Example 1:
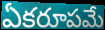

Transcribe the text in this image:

ఏకరూపమే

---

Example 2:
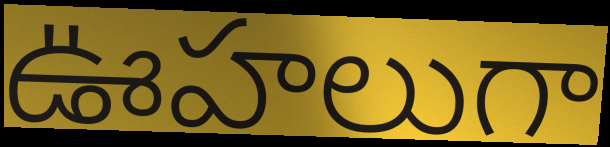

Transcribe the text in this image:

ఊహలుగా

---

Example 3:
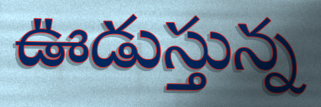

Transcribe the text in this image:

ఊడుస్తున్న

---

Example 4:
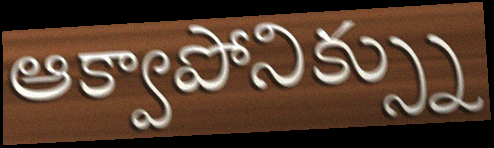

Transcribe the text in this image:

ఆక్వాపోనిక్స్ను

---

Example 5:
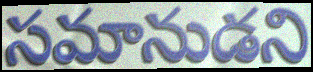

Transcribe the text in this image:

సమానుడని